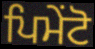
ਪਿਮੇਂਟੋ